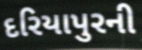
દરિયાપુરની